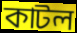
কাটল